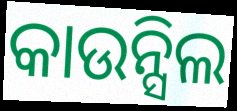
କାଉନ୍ସିଲ